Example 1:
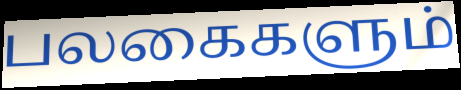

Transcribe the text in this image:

பலகைகளும்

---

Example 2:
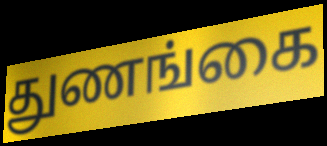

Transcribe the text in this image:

துணங்கை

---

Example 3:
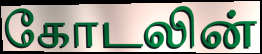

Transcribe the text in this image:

கோடலின்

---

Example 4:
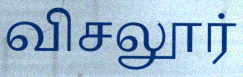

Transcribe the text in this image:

விசலூர்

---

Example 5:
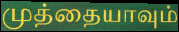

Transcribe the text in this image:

முத்தையாவும்